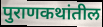
पुराणकथांतील